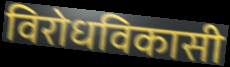
विरोधविकासी